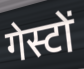
गेस्टों